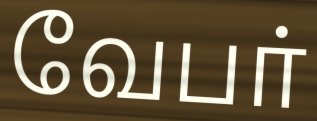
வேபர்